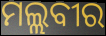
ମଲ୍ଲବୀର